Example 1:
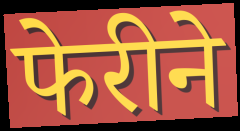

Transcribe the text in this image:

फेरीने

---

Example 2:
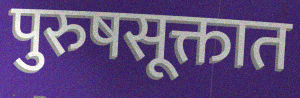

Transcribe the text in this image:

पुरुषसूक्तात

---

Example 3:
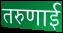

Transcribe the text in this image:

तरुणाई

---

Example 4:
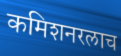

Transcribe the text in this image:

कमिशनरलाच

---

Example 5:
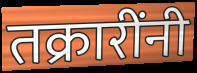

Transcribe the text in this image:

तक्रारींनी